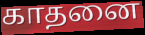
காதனை